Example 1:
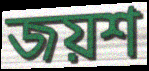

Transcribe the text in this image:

জয়শ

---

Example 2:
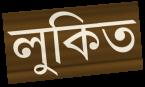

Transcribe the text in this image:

লুকিত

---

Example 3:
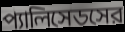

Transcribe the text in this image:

প্যালিসেডসের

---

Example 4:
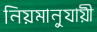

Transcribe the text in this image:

নিয়মানুযায়ী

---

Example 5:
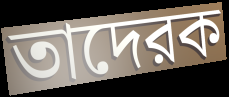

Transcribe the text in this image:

তাদেরক